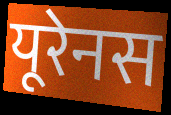
यूरेनस